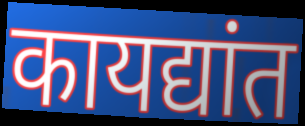
कायद्यांत